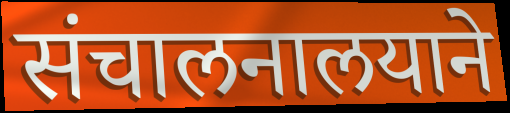
संचालनालयाने